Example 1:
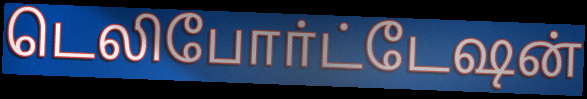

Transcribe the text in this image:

டெலிபோர்ட்டேஷன்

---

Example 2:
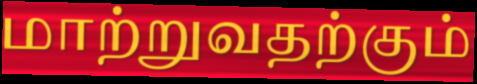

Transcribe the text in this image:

மாற்றுவதற்கும்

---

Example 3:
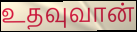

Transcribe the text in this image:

உதவுவான்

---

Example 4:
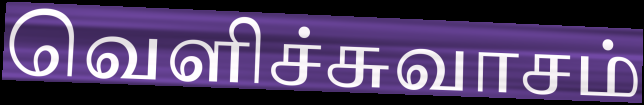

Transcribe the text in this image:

வெளிச்சுவாசம்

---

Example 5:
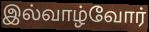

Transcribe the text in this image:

இல்வாழ்வோர்